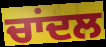
ਚਾਂਦਲ